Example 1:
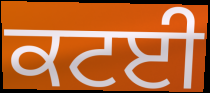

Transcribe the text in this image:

ਕਟਈ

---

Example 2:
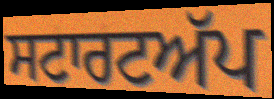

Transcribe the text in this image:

ਸਟਾਰਟਅੱਪ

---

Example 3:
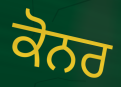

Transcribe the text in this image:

ਕੋਨਰ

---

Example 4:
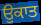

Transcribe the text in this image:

ਉਕਾਤ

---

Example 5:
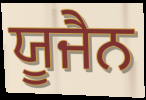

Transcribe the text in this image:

ਯੂਜੈਨ